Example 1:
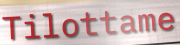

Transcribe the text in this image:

Tilottame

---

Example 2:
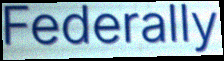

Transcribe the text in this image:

Federally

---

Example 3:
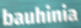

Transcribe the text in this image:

bauhinia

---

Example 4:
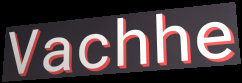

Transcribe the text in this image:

Vachhe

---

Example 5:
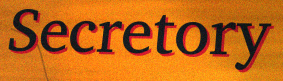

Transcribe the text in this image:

Secretory